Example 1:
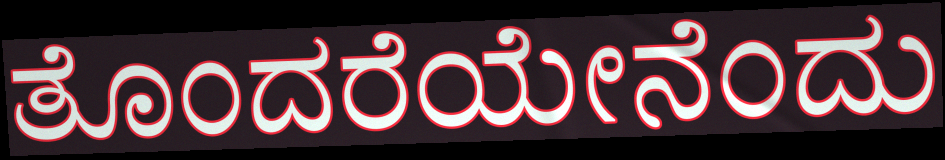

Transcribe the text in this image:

ತೊಂದರೆಯೇನೆಂದು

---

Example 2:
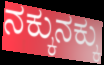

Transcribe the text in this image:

ನಕ್ಕುನಕ್ಕು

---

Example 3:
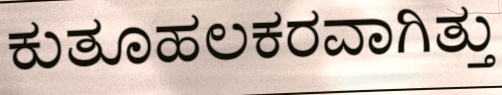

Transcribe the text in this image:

ಕುತೂಹಲಕರವಾಗಿತ್ತು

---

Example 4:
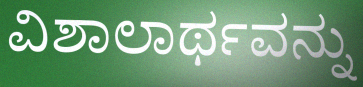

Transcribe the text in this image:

ವಿಶಾಲಾರ್ಥವನ್ನು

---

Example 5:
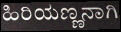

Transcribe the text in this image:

ಹಿರಿಯಣ್ಣನಾಗಿ